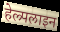
हेल्पलाइन